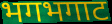
भगभगाट